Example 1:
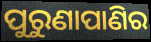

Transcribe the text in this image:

ପୁରୁଣାପାଣିର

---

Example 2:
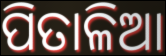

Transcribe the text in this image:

ପିତାଳିଆ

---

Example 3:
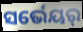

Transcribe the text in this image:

ସର୍ଭେୟର୍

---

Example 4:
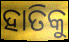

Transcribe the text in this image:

ହାତିକୁ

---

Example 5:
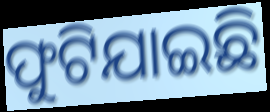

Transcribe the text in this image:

ଫୁଟିଯାଇଛି